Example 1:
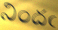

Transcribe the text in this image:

నిందఁ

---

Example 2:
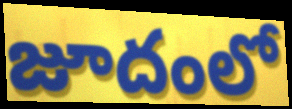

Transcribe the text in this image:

జూదంలో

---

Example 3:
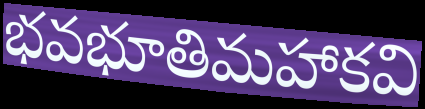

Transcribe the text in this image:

భవభూతిమహాకవి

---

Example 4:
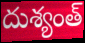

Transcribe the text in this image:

దుశ్యంత్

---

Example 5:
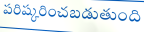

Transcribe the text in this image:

పరిష్కరించబడుతుంది